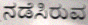
ನಡೆಸಿರುವ